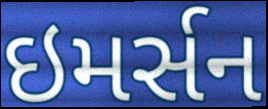
ઇમર્સન